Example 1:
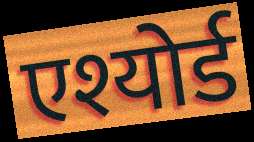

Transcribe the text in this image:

एश्योर्ड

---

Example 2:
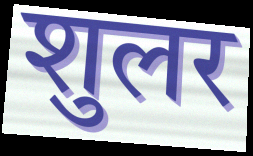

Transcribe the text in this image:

शुलर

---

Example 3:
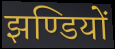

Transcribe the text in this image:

झण्डियों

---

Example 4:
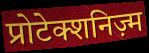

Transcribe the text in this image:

प्रोटेक्शनिज़्म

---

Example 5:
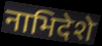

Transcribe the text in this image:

नाभिदेशे